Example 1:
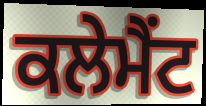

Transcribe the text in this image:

ਕਲੇਮੈਂਟ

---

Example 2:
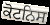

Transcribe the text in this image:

ਕੋਟਨਿਸ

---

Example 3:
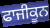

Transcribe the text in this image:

ਫਾਜੀਕੂਨ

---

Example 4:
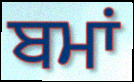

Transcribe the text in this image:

ਬਮਾਂ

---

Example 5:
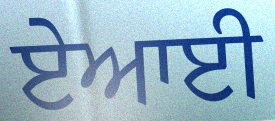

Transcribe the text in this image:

ਏਆਈ